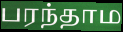
பரந்தாம